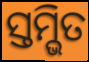
ସ୍ତମ୍ଭିତ